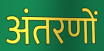
अंतरणों